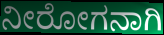
ನೀರೋಗನಾಗಿ